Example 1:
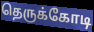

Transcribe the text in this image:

தெருக்கோடி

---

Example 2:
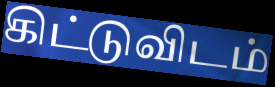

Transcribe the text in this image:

கிட்டுவிடம்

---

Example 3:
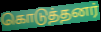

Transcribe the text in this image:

கொடுத்தனர்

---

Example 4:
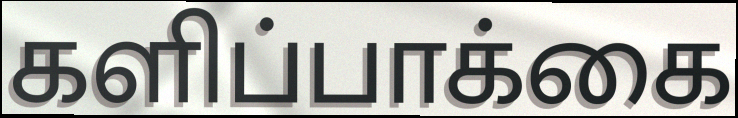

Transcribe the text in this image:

களிப்பாக்கை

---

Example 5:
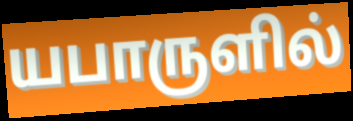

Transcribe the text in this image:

யபாருளில்